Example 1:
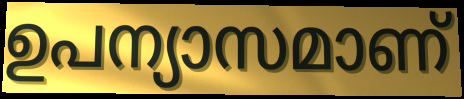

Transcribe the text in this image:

ഉപന്യാസമാണ്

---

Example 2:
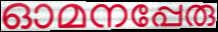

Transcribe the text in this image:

ഓമനപ്പേരു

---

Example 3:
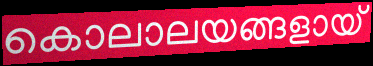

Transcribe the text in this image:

കൊലാലയങ്ങളായ്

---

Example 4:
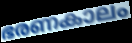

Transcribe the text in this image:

ഭരണകാലം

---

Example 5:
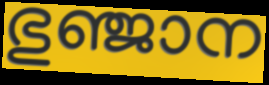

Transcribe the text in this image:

ഭുഞ്ജാന